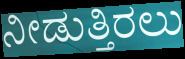
ನೀಡುತ್ತಿರಲು